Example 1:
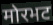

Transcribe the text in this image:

मोरभट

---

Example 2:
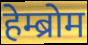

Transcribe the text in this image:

हेम्ब्रोम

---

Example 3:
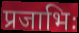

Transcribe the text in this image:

प्रजाभिः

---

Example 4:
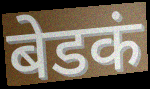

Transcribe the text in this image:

बेडकं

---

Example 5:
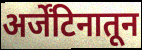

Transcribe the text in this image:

अर्जेंटिनातून